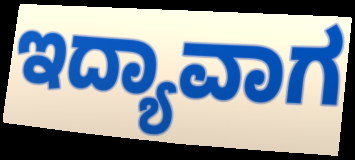
ಇದ್ಯಾವಾಗ